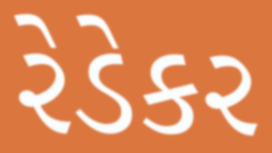
રેડેકર